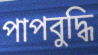
পাপবুদ্ধি